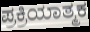
ಪ್ರಕ್ರಿಯಾತ್ಮಕ